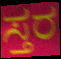
ಸ್ತರ